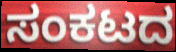
ಸಂಕಟದ